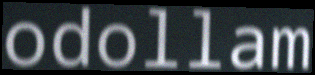
odollam